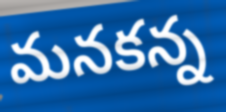
మనకన్న